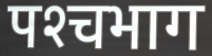
पश्चभाग